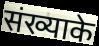
संख्याके